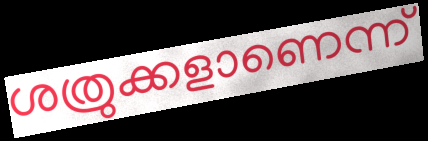
ശത്രുക്കളാണെന്ന്